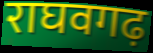
राघवगढ़